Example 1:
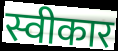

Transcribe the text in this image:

स्‍वीकार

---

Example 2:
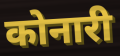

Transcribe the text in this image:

कोनारी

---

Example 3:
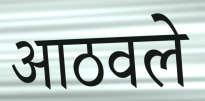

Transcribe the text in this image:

आठवले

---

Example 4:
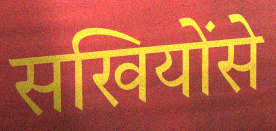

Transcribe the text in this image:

सखियोंसे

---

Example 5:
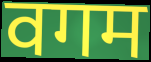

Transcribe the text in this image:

वगम